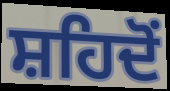
ਸ਼ਹਿਦੋਂ